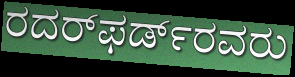
ರದರ್‌ಫರ್ಡ್‌ರವರು